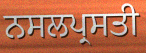
ਨਸਲਪ੍ਰਸਤੀ